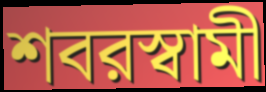
শবরস্বামী